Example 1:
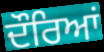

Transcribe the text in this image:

ਦੌਰਿਆਂ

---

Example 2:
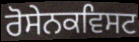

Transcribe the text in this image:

ਰੋਸੇਨਕਵਿਸਟ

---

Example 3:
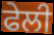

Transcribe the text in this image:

ਫੇਲੀ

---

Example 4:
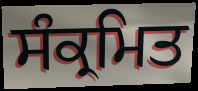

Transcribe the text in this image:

ਸੰਕ੍ਰਮਿਤ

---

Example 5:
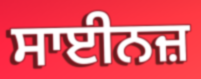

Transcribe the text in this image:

ਸਾਈਨਜ਼